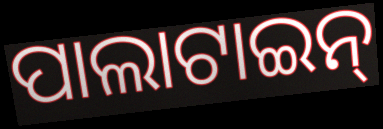
ପାଲାଟାଇନ୍